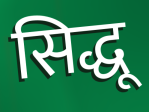
सिद्धू